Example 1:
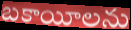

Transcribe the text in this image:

బకాయీలను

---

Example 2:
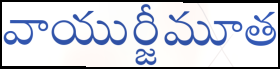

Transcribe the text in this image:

వాయుర్జీమూత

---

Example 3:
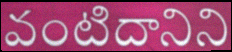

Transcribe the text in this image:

వంటిదానిని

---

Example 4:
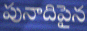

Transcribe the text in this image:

పునాదిపైన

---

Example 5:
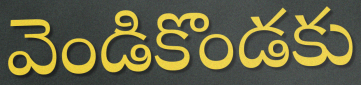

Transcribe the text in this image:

వెండికొండకు